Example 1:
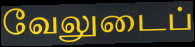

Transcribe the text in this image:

வேலுடைப்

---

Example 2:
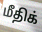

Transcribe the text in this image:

மீதிக்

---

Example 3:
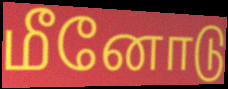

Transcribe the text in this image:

மீனோடு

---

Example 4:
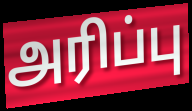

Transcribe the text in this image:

அரிப்பு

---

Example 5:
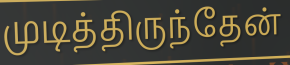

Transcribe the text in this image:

முடித்திருந்தேன்